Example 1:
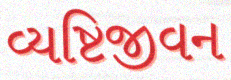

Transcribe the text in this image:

વ્યષ્ટિજીવન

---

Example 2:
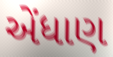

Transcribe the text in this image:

એંધાણ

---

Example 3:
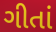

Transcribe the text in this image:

ગીતાં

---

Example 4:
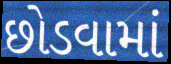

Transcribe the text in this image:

છોડવામાં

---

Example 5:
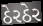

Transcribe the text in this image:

ઠેરઠેર